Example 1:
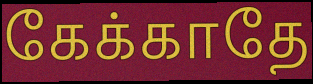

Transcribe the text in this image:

கேக்காதே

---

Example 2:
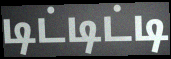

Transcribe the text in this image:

டிட்டிட்டி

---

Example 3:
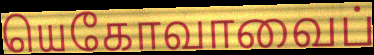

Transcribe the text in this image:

யெகோவாவைப்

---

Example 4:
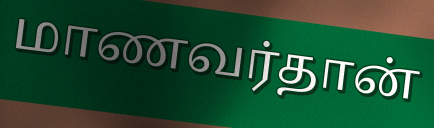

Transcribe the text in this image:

மாணவர்தான்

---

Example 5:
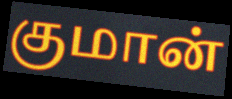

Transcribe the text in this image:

குமான்